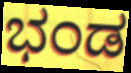
ಭಂಡ